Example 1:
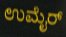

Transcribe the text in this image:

ಉಮೈರ್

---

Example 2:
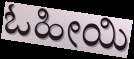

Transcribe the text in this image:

ಓಹೀಯಿ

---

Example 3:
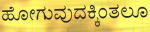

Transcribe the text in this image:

ಹೋಗುವುದಕ್ಕಿಂತಲೂ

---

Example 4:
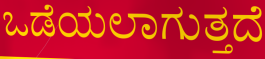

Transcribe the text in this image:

ಒಡೆಯಲಾಗುತ್ತದೆ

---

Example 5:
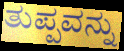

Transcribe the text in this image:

ತುಪ್ಪವನ್ನು